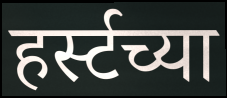
हर्स्टच्या